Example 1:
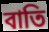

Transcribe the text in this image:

বাতি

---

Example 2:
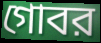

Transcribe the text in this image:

গোবর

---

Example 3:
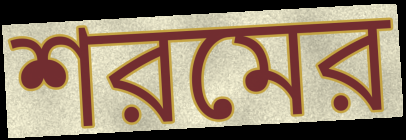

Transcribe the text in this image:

শরমের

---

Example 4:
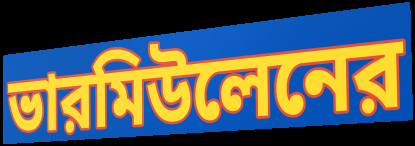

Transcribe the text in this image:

ভারমিউলেনের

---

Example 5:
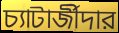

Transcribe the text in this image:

চ্যাটার্জীদার